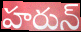
హరున్